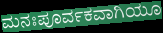
ಮನಃಪೂರ್ವಕವಾಗಿಯೂ